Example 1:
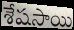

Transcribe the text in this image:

శేషసాయి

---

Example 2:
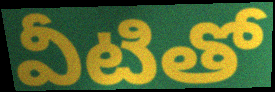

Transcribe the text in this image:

వీటితో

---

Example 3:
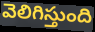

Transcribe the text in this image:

వెలిగిస్తుంది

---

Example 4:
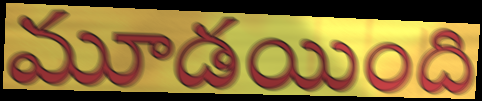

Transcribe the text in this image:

మూడయింది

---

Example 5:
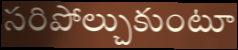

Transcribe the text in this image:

సరిపోల్చుకుంటూ